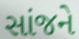
સાંજને